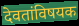
देवतांविषयक